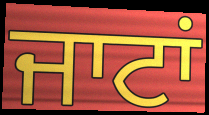
ਜਾਟਾਂ